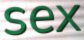
sex